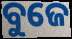
ବୁଜେ